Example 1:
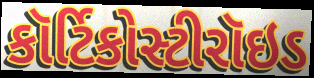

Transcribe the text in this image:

કૉર્ટિકોસ્ટીરૉઇડ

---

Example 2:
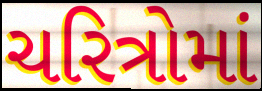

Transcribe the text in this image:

ચરિત્રોમાં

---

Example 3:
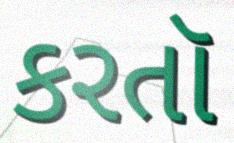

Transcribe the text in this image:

કરતૉ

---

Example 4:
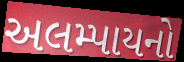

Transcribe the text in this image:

અલમ્પાયનો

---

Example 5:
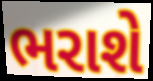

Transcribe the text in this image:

ભરાશે